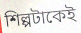
শিল্পটাকেই